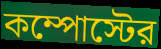
কম্পোস্টের